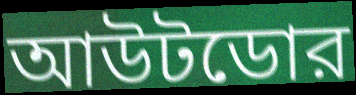
আউটডোর